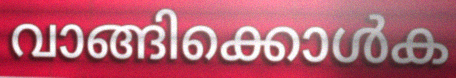
വാങ്ങിക്കൊൾക